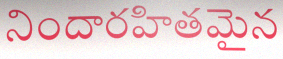
నిందారహితమైన